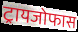
ट्रायजोफास